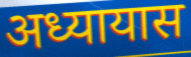
अध्यायास